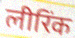
लीरिंक